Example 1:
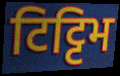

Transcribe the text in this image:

टिट्टिभ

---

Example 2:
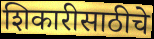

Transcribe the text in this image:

शिकारीसाठीचे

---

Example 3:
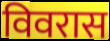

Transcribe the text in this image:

विवरास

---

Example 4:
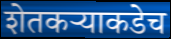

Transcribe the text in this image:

शेतकऱ्याकडेच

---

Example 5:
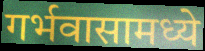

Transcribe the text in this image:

गर्भवासामध्ये